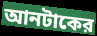
আনটাকের